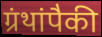
ग्रंथांपैकी